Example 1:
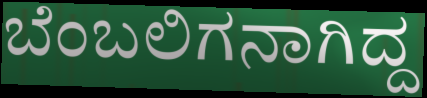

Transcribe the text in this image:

ಬೆಂಬಲಿಗನಾಗಿದ್ದ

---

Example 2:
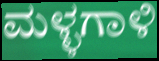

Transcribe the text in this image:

ಮಳ್ಳಗಾಳಿ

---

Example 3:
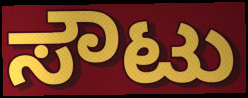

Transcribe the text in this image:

ಸೌಟು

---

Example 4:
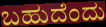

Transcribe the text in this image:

ಬಹುದೆಂದು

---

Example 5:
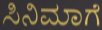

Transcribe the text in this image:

ಸಿನಿಮಾಗೆ